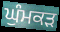
ਘੁੰਮਕੜ